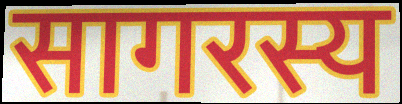
सागरस्य